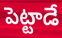
పెట్టాడే